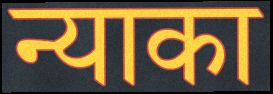
न्याका